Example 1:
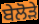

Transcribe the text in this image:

ਬੇਲੋੜੇ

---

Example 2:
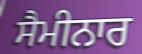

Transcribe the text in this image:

ਸੈਮੀਨਾਰ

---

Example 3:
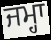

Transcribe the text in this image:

ਜਮ੍ਹਾ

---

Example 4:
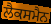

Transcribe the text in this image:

ਲੈਕਸਮੈਨ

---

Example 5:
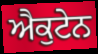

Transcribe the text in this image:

ਐਕੁਟੇਨ